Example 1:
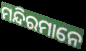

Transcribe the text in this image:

ମନ୍ଦିରମାନେ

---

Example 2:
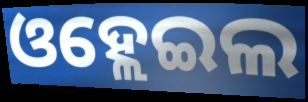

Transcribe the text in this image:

ଓହ୍ଲେଇଲ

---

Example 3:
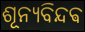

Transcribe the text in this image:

ଶୂନ୍ଯବିନ୍ଦଵ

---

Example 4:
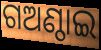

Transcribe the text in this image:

ଗଅଣ୍ଠାଇ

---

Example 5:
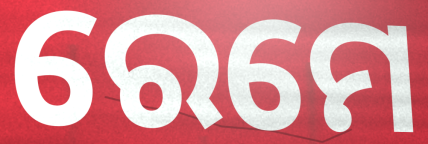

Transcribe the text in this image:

ରେମେ